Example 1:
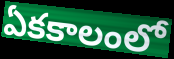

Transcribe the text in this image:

ఏకకాలంలో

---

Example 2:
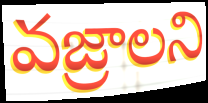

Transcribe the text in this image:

వజ్రాలని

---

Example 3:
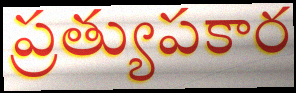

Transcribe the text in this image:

ప్రత్యుపకార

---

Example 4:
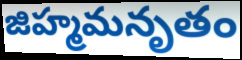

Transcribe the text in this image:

జిహ్మమనృతం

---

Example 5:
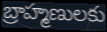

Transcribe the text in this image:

బ్రాహ్మణులకు